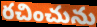
రచించును